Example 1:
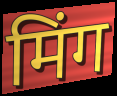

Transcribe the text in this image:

मिंग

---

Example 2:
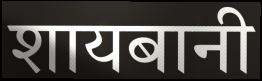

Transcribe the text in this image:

शायबानी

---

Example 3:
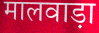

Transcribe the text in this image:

मालवाड़ा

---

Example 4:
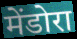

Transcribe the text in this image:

मेंडोरा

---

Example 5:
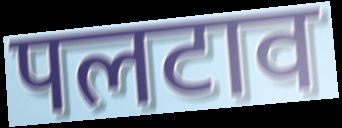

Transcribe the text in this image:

पलटाव